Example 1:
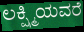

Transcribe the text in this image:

ಲಕ್ಷ್ಮಿಯವರೆ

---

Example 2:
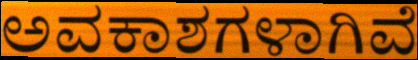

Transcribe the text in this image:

ಅವಕಾಶಗಳಾಗಿವೆ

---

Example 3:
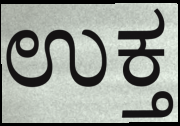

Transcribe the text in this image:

ಉಕ್ತ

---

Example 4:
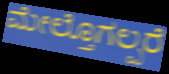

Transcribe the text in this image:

ಮೇಲ್ತೊಗಲ್ಪರೆ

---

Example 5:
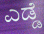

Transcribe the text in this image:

ಎಡ್ಡೆ